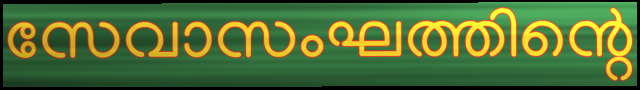
സേവാസംഘത്തിന്റെ